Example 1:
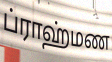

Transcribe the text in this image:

ப்ராஹ்மண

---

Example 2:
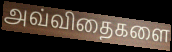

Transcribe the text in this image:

அவ்விதைகளை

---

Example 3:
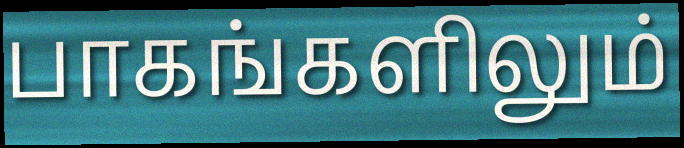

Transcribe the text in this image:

பாகங்களிலும்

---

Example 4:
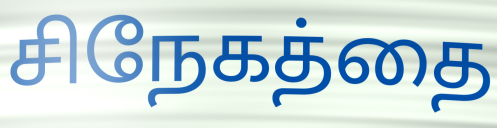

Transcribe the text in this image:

சிநேகத்தை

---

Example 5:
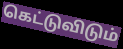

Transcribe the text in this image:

கெட்டுவிடும்